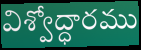
విశ్వోద్ధారము